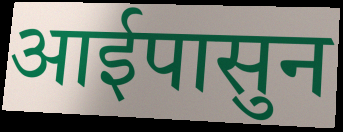
आईपासुन